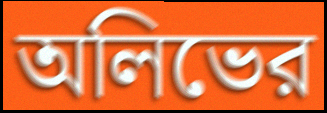
অলিভের